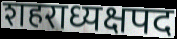
शहराध्यक्षपद